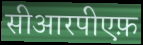
सीआरपीएफ़